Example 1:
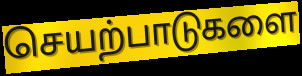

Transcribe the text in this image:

செயற்பாடுகளை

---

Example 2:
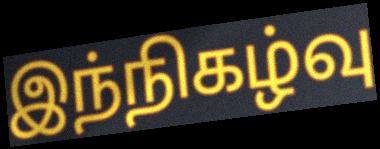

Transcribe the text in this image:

இந்நிகழ்வு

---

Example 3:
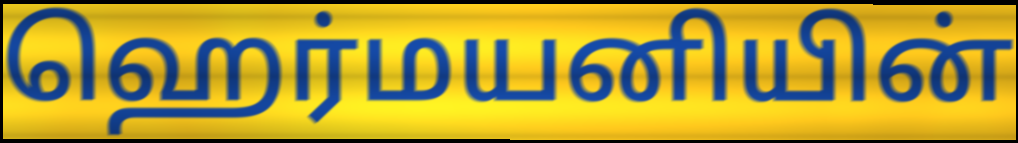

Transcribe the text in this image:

ஹெர்மயனியின்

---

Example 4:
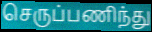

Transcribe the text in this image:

செருப்பணிந்து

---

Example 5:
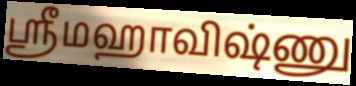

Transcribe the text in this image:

ஸ்ரீமஹாவிஷ்ணு